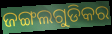
ଜଙ୍ଗଲଗୁଡିକର